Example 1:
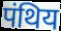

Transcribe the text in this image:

पंथिय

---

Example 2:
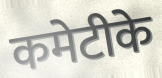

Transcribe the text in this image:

कमेटीके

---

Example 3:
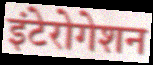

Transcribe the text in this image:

इंटेरोगेशन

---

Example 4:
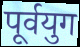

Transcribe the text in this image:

पूर्वयुग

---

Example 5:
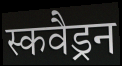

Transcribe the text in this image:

स्कवैड्रन